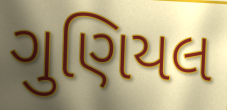
ગુણિયલ